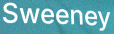
Sweeney